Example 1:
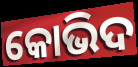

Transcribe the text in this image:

କୋଭିଦ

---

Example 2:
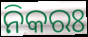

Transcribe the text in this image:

ନିକରଃ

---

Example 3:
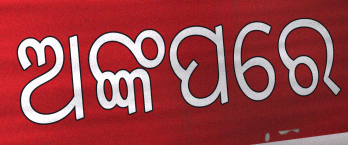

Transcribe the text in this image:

ଅଙ୍କପରେ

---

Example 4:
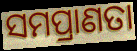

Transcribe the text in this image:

ସମପ୍ରାଣତା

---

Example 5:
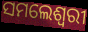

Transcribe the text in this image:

ସମଲେଶ୍ୱରୀ